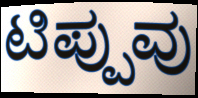
ಟಿಪ್ಪುವು